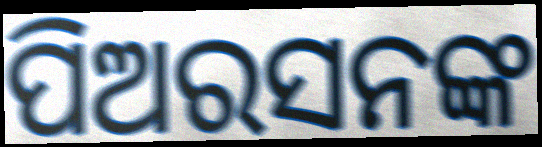
ପିଅରସନଙ୍କ